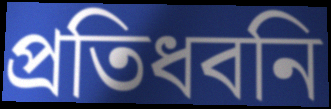
প্রতিধবনি